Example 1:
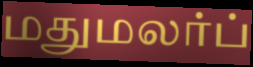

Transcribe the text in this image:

மதுமலர்ப்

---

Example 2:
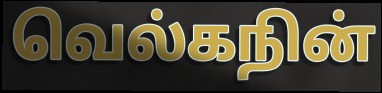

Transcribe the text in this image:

வெல்கநின்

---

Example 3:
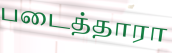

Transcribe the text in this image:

படைத்தாரா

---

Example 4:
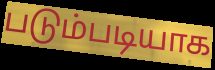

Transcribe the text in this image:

படும்படியாக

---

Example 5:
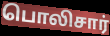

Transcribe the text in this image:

பொலிசார்